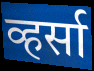
व्हर्सा